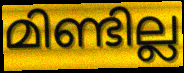
മിണ്ടില്ല